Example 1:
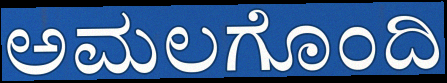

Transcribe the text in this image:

ಅಮಲಗೊಂದಿ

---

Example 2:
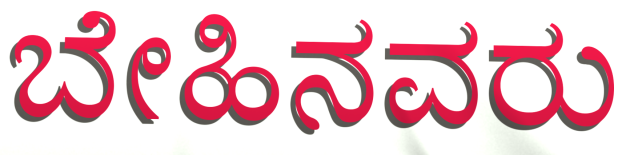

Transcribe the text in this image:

ಬೇಹಿನವರು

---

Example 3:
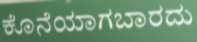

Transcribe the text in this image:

ಕೊನೆಯಾಗಬಾರದು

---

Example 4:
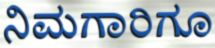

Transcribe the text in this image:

ನಿಮಗಾರಿಗೂ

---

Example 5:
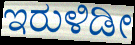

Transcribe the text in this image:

ಇರುಳಿಡೀ